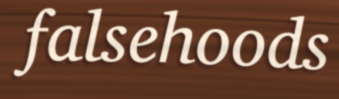
falsehoods